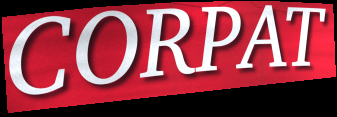
CORPAT